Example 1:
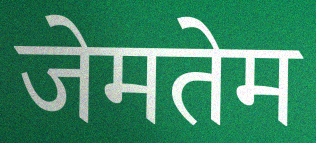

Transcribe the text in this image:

जेमतेम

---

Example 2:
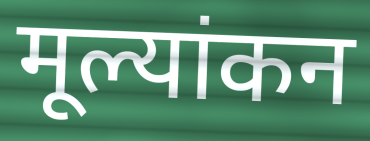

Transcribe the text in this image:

मूल्यांकन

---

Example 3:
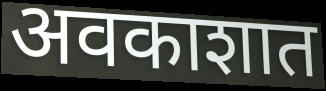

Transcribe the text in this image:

अवकाशात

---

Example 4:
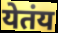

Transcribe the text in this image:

येतंय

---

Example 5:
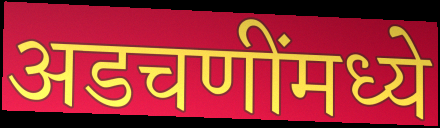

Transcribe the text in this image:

अडचणींमध्ये